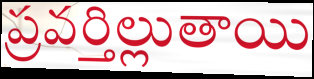
ప్రవర్తిల్లుతాయి